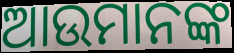
ଆଉମାନଙ୍କ